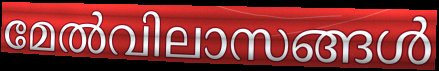
മേൽവിലാസങ്ങൾ